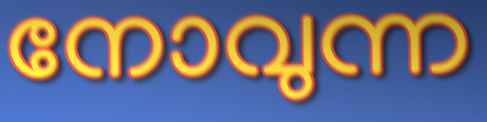
നോവുന്ന